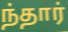
ந்தார்